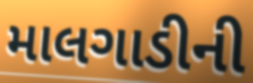
માલગાડીની